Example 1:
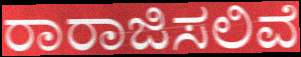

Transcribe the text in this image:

ರಾರಾಜಿಸಲಿವೆ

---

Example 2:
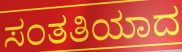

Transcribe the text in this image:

ಸಂತತಿಯಾದ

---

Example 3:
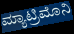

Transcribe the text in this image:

ಮ್ಯಾಟ್ರಿಮೊನಿ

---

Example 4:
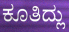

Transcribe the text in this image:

ಕೂತಿದ್ಲು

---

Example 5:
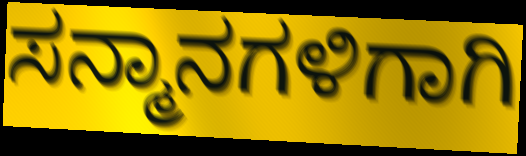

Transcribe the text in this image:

ಸನ್ಮಾನಗಳಿಗಾಗಿ